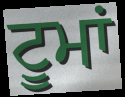
ਟੂਮਾਂ